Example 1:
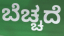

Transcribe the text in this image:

ಬೆಚ್ಚದೆ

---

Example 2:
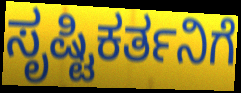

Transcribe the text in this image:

ಸೃಷ್ಟಿಕರ್ತನಿಗೆ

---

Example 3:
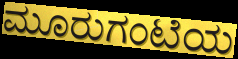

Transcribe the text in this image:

ಮೂರುಗಂಟೆಯ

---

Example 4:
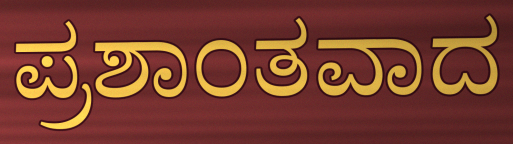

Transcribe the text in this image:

ಪ್ರಶಾಂತವಾದ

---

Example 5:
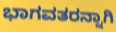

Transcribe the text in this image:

ಭಾಗವತರನ್ನಾಗಿ